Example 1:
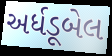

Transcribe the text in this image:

અર્ધડૂબેલ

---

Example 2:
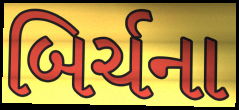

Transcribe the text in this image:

બિર્ચના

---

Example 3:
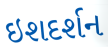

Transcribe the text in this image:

ઇશદર્શન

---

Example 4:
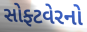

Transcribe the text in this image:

સોફ્ટવેરનો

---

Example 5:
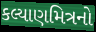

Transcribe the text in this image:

કલ્યાણમિત્રનો